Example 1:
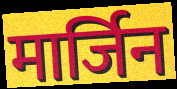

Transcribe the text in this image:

मार्जिन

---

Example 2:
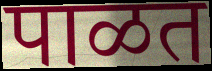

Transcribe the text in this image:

पाळत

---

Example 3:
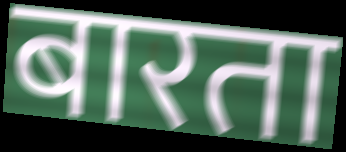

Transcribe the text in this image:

बारता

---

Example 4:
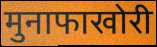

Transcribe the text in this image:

मुनाफाखोरी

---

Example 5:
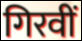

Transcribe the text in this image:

गिरवीं